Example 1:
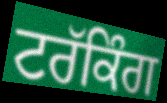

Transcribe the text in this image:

ਟਰੱਕਿੰਗ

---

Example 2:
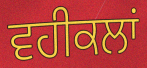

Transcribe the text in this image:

ਵਹੀਕਲਾਂ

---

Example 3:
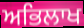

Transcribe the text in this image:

ਅਭਿਲਾਖ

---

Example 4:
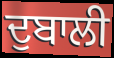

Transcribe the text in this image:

ਦੁਬਾਲੀ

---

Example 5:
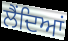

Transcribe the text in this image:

ਲੈਂਦਿਆਂ